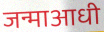
जन्माआधी